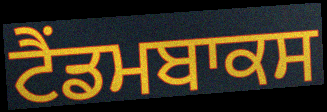
ਟੈਂਡਮਬਾਕਸ